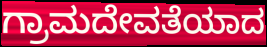
ಗ್ರಾಮದೇವತೆಯಾದ